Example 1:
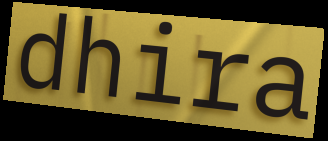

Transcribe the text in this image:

dhira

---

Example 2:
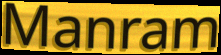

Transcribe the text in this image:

Manram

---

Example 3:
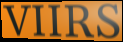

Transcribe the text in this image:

VIIRS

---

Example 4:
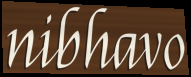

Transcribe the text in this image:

nibhavo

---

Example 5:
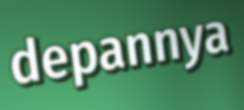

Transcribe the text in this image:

depannya